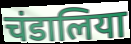
चंडालिया